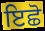
ਇਛੋ